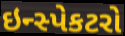
ઇન્સ્પેકટરો